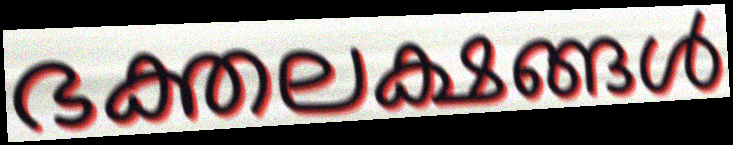
ഭക്തലക്ഷങ്ങൾ